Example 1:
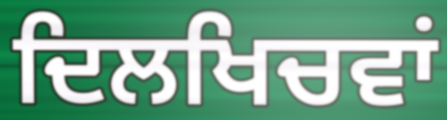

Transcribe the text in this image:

ਦਿਲਖਿਚਵਾਂ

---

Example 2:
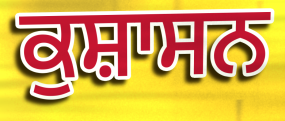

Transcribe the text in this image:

ਕੁਸ਼ਾਸਨ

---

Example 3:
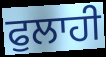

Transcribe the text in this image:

ਫੁਲਾਹੀ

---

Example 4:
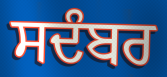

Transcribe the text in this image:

ਸਦੰਬਰ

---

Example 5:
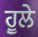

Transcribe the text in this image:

ਹੂਲੇ